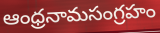
ఆంధ్రనామసంగ్రహం